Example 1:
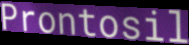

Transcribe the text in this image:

Prontosil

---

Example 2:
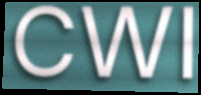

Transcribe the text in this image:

CWI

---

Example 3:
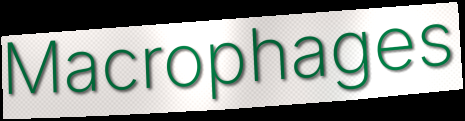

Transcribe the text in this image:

Macrophages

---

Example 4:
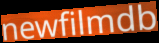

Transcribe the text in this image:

newfilmdb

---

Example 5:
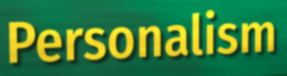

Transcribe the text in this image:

Personalism